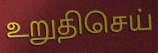
உறுதிசெய்